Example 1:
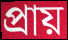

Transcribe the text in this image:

প্রায়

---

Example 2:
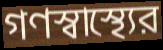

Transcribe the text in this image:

গণস্বাস্থ্যের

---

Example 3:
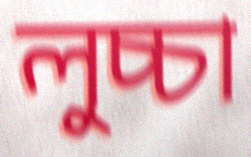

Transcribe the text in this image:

লুচ্চা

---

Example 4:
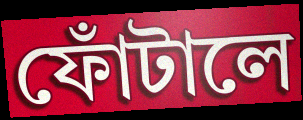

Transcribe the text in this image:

ফোঁটালে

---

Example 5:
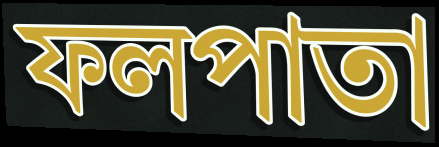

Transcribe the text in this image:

ফলপাতা